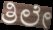
ತಿಲೇ